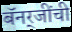
बॅनर्जींची